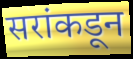
सरांकडून